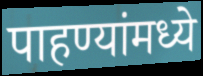
पाहण्यांमध्ये